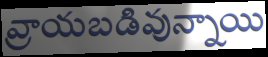
వ్రాయబడివున్నాయి